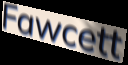
Fawcett